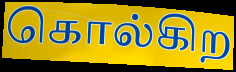
கொல்கிற